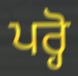
ਪਰ੍ਹੋ